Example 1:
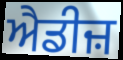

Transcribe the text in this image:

ਐਡੀਜ਼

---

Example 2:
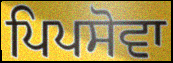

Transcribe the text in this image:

ਪਿਪਸੋਵਾ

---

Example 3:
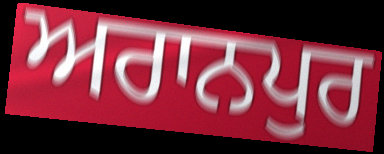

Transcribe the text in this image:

ਅਰਾਨਪੁਰ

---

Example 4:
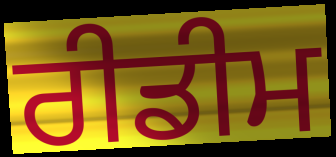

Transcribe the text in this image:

ਰੀਡੀਮ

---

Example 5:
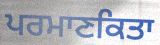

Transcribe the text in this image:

ਪਰਮਾਣਕਿਤਾ